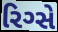
રિગ્સે